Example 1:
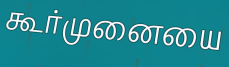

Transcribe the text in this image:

கூர்முனையை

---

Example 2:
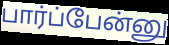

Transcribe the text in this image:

பார்ப்பேன்னு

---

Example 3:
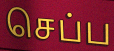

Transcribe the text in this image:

செப்ப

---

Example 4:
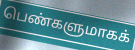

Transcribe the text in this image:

பெண்களுமாகக்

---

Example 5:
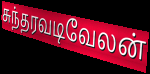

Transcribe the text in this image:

சுந்தரவடிவேலன்